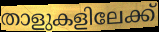
താളുകളിലേക്ക്